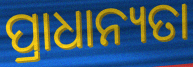
ପ୍ରାଧାନ୍ୟତା